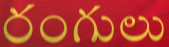
రంగులు